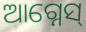
ଆଗ୍ନେସ୍